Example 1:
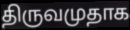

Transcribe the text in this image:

திருவமுதாக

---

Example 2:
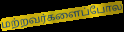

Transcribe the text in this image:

மற்றவர்களைப்போல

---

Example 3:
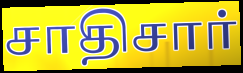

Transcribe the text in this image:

சாதிசார்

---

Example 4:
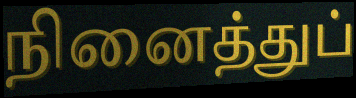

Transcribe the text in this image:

நினைத்துப்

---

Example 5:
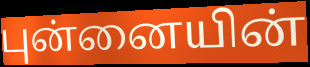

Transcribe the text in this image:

புன்னையின்